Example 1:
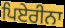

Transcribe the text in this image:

ਪਿਏਰੀਨਾ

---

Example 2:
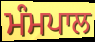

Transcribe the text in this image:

ਮੰਮਪਾਲ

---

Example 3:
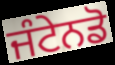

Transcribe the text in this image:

ਜੰਟੇਨਡੋ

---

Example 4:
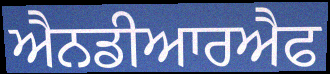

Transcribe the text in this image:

ਐਨਡੀਆਰਐਫ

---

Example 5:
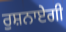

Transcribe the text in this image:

ਰੁਸ਼ਨਾਏਗੀ